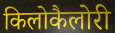
किलोकैलोरी